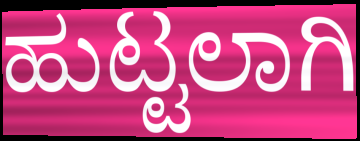
ಹುಟ್ಟಲಾಗಿ